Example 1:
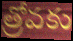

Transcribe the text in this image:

త్రోవకు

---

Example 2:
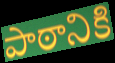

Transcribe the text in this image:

పాఠానికి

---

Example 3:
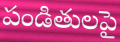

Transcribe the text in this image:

పండితులపై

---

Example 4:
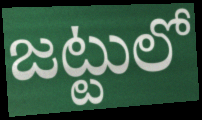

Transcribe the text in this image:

జట్టులో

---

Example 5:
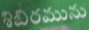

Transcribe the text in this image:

శిబిరమును